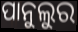
ପାନୁଲୁର